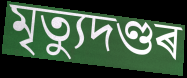
মৃত্যুদণ্ডৰ